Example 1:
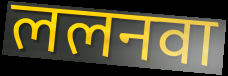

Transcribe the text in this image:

ललनवा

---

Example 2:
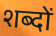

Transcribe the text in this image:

शब्दों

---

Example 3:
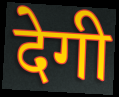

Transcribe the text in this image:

देगी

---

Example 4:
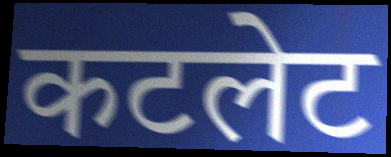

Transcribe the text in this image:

कटलेट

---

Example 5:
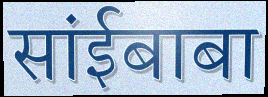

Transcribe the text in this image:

सांईबाबा